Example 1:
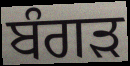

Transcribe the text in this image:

ਬੰਗੜ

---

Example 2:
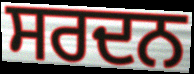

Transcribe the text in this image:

ਸਰਦਨ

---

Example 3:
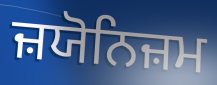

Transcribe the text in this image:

ਜ਼ਯੋਨਿਜ਼ਮ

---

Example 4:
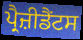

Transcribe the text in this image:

ਪ੍ਰੈਜ਼ੀਡੈਂਟਸ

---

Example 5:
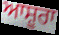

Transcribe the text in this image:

ਆਸ਼ੂਰਾ